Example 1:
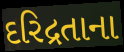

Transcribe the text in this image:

દરિદ્રતાના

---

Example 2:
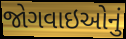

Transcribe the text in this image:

જોગવાઇઓનું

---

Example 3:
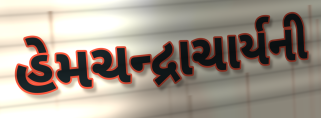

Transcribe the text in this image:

હેમચન્દ્રાચાર્યની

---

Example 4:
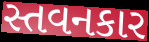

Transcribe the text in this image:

સ્તવનકાર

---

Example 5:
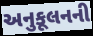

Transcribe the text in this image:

અનુકૂલનની